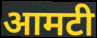
आमटी